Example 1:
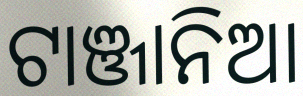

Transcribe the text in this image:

ଟାଞ୍ଜାନିଆ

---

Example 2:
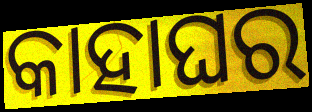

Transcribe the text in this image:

କାହାଘର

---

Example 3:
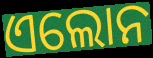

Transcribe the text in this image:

ଏଲୋନ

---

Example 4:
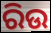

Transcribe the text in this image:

ରିଉ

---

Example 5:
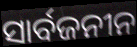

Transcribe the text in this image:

ସାର୍ବଜନୀନ